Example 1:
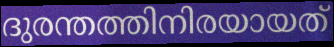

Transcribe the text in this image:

ദുരന്തത്തിനിരയായത്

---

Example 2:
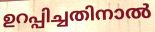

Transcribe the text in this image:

ഉറപ്പിച്ചതിനാൽ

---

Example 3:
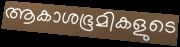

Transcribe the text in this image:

ആകാശഭൂമികളുടെ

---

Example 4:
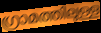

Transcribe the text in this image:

ഗ്രാമത്തിലുള്ള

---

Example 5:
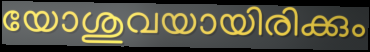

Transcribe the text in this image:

യോശുവയായിരിക്കും